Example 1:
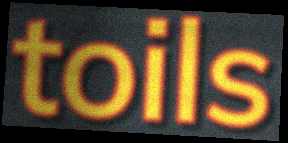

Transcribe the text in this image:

toils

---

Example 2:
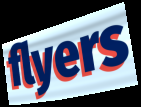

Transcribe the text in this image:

flyers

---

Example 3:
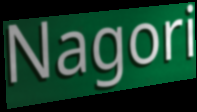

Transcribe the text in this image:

Nagori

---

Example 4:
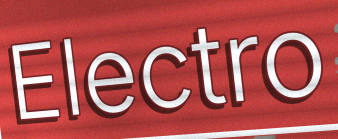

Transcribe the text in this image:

Electro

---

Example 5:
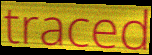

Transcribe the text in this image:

traced